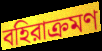
বহিরাক্রমণ